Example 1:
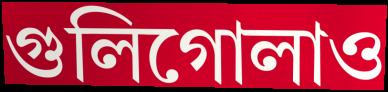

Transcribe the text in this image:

গুলিগোলাও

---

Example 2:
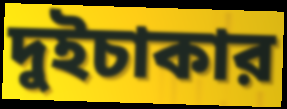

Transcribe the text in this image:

দুইচাকার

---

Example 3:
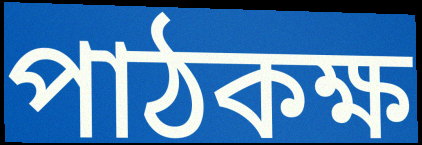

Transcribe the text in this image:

পাঠকক্ষ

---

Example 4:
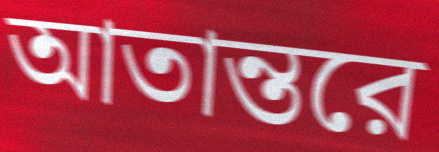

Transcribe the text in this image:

আতান্তরে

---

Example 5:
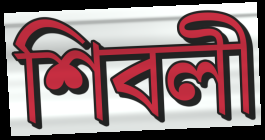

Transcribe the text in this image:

শিবলী